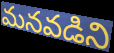
మనవడిని